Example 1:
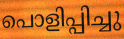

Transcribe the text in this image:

പൊളിപ്പിച്ചു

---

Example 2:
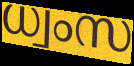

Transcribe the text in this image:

ധ്വംസ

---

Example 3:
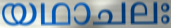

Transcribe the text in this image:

യഥാചലഃ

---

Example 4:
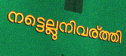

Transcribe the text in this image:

നട്ടെല്ലുനിവര്ത്തി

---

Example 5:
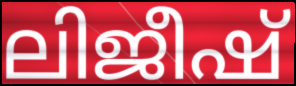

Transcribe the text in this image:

ലിജീഷ്